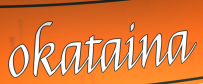
okataina